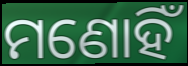
ମଣୋହିଁ